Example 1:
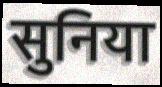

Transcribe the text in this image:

सुनिया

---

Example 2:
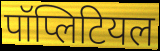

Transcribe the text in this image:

पॉप्लिटियल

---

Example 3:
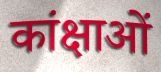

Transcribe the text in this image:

कांक्षाओं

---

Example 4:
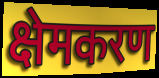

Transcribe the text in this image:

क्षेमकरण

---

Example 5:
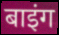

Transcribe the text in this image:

बाइंग